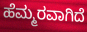
ಹೆಮ್ಮರವಾಗಿದೆ